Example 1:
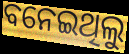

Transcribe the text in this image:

ବନେଇଥିଲୁ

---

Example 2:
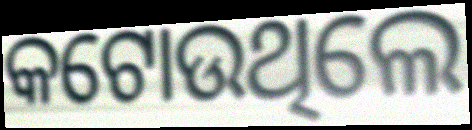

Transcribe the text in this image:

କଟୋଉଥିଲେ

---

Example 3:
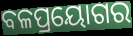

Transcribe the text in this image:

ବଳପ୍ରୟୋଗର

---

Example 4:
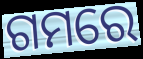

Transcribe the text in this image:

ଗମରେ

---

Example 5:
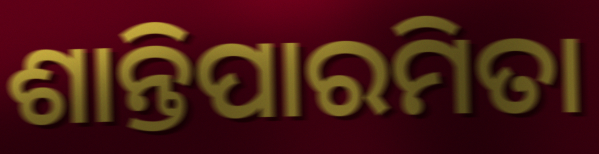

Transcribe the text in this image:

ଶାନ୍ତିପାରମିତା